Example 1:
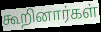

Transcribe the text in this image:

கூறினார்கள்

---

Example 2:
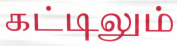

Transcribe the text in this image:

கட்டிலும்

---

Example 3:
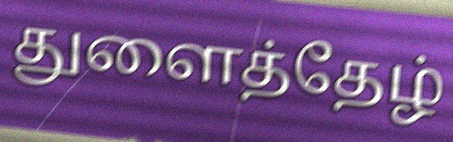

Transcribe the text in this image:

துளைத்தேழ்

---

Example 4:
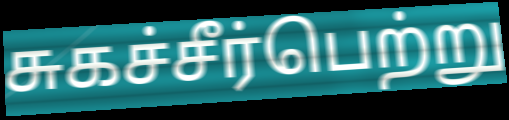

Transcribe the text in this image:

சுகச்சீர்பெற்று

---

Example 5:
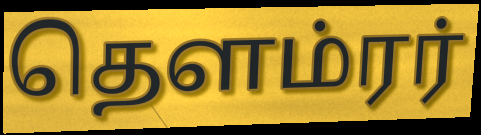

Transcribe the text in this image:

தௌம்ரர்